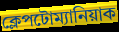
ক্লেপটোম্যানিয়াক